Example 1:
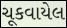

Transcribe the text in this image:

ચૂકવાયેલ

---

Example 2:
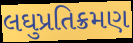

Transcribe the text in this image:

લઘુપ્રતિક્રમણ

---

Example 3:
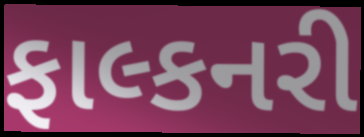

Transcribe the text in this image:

ફાલ્કનરી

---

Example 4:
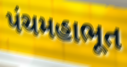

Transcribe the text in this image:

પંચમહાભૂત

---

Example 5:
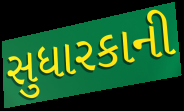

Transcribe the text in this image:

સુધારકાની